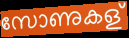
സോണുകള്